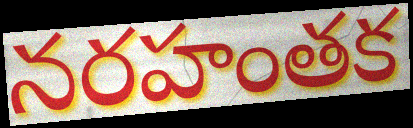
నరహంతక